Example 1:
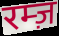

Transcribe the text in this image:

रम्ज़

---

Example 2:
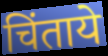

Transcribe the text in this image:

चिंताये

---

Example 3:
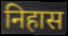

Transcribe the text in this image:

निहास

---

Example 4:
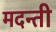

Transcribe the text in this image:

मदन्ती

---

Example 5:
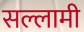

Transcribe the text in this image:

सल्लामी